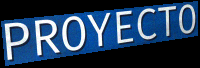
PROYECTO